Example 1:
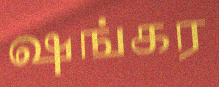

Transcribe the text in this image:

ஷங்கர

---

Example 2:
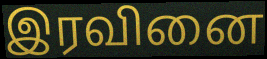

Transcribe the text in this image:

இரவினை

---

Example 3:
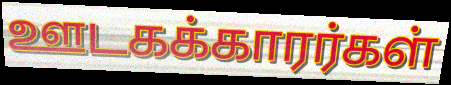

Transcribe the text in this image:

ஊடகக்காரர்கள்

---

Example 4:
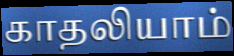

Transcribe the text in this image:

காதலியாம்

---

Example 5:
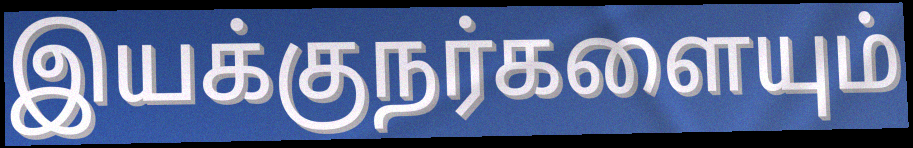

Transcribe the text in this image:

இயக்குநர்களையும்